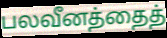
பலவீனத்தைத்